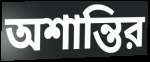
অশান্তির